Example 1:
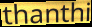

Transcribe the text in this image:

thanthi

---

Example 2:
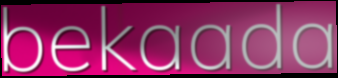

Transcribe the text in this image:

bekaada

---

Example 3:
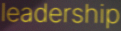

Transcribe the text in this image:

leadership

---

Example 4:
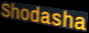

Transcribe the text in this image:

Shodasha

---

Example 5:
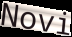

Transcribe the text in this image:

Novi